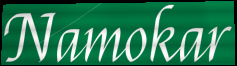
Namokar